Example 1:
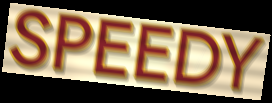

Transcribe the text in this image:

SPEEDY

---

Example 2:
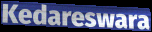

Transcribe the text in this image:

Kedareswara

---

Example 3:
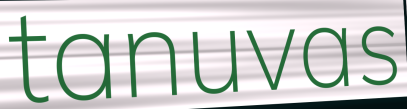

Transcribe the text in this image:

tanuvas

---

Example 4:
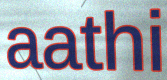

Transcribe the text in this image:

aathi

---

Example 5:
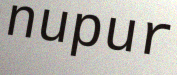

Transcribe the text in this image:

nupur